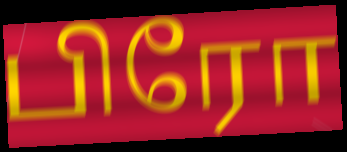
பிரோ